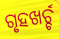
ଗୃହଖର୍ଚ୍ଚ